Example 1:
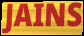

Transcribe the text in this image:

JAINS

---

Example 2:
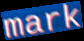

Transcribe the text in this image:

mark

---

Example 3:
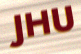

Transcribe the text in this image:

JHU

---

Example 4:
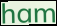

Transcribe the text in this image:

ham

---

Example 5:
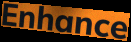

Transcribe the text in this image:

Enhance